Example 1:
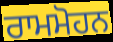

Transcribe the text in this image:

ਰਾਮਮੋਹਨ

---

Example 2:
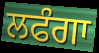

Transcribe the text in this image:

ਲਫੰਗਾ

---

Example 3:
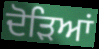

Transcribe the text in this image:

ਦੋੜਿਆਂ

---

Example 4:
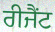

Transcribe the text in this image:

ਰੀਜੈਂਟ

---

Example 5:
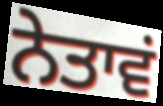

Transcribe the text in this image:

ਨੇਤਾਵਂ